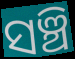
ସଞ୍ଚି